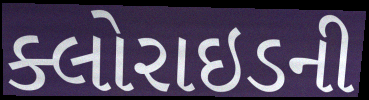
ક્લોરાઇડની